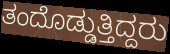
ತಂದೊಡ್ಡುತ್ತಿದ್ದರು